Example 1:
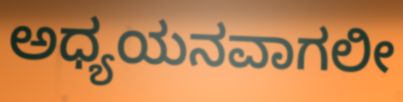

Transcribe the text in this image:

ಅಧ್ಯಯನವಾಗಲೀ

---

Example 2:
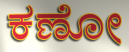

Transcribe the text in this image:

ಕಣೋ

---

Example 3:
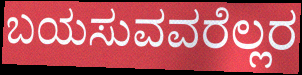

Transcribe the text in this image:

ಬಯಸುವವರೆಲ್ಲರ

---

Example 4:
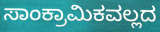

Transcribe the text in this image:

ಸಾಂಕ್ರಾಮಿಕವಲ್ಲದ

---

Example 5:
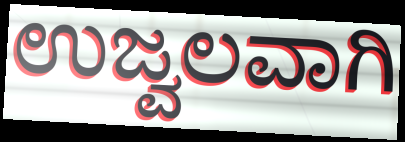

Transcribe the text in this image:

ಉಜ್ವಲವಾಗಿ